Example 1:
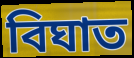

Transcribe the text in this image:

বিঘাত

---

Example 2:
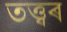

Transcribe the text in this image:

তত্ত্বৰ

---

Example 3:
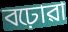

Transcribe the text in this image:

বঢ়োৱা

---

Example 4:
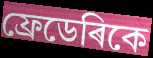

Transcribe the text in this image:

ফ্ৰেডেৰিকে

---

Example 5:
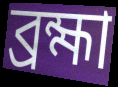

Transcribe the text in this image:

ব্ৰহ্মা